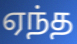
ஏந்த